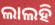
ଲାଲହି